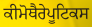
ਕੀਮੋਥੈਰੇਪੂਟਿਕਸ